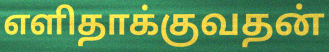
எளிதாக்குவதன்